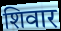
शिवार